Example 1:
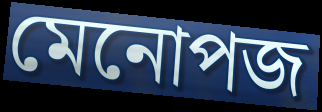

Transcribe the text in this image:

মেনোপজ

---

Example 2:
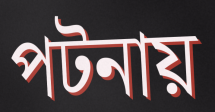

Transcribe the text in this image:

পটনায়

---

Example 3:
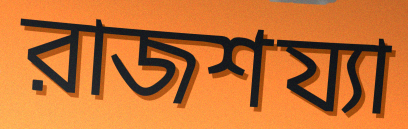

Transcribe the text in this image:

রাজশয্যা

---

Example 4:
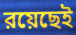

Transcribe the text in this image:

রয়েছেই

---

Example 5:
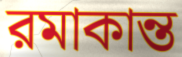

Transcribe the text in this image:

রমাকান্ত